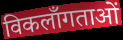
विकलाँगताओं